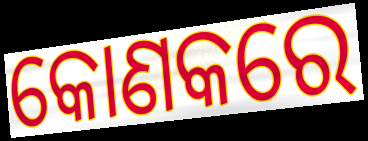
କୋଣକରେ